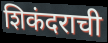
शिकंदराची